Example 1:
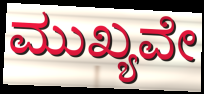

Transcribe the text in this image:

ಮುಖ್ಯವೇ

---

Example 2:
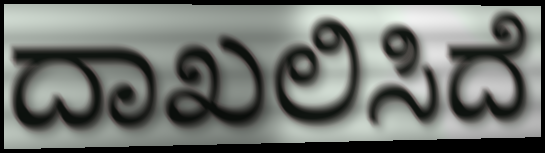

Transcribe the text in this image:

ದಾಖಲಿಸಿದೆ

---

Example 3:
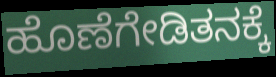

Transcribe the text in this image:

ಹೊಣೆಗೇಡಿತನಕ್ಕೆ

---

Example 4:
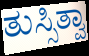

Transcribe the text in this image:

ತುಸ್ಸಿತ್ವಾ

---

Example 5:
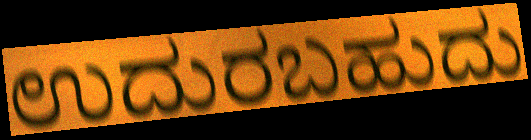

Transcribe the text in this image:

ಉದುರಬಹುದು